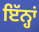
ਇੱਨ੍ਹਾਂ